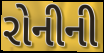
રોનીની